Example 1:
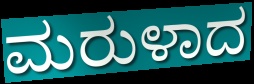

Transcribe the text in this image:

ಮರುಳಾದ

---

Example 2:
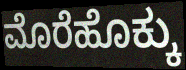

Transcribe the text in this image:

ಮೊರೆಹೊಕ್ಕು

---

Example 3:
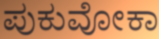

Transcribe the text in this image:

ಪುಕುವೋಕಾ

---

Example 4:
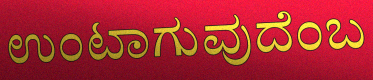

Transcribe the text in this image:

ಉಂಟಾಗುವುದೆಂಬ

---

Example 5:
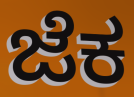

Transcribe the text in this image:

ಜೆಕ